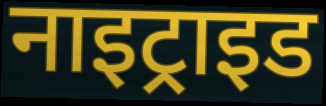
नाइट्राइड